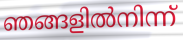
ഞങ്ങളിൽനിന്ന്